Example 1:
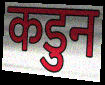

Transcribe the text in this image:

कडुन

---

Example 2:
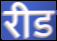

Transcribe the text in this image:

रीड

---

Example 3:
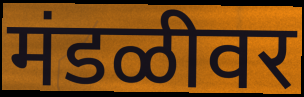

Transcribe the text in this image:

मंडळीवर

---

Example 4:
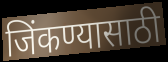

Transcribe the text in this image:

जिंकण्यासाठी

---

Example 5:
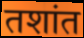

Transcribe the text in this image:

तशांत